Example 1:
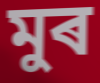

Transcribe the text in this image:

মুৰ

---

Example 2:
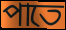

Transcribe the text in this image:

পাতে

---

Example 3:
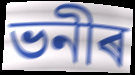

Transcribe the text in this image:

ভনীৰ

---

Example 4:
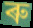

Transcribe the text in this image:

ৰু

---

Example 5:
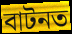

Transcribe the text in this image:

বাটনত